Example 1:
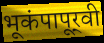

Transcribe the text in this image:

भूकंपापूर्वी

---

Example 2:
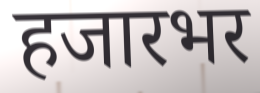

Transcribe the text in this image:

हजारभर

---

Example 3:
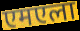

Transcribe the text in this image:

एमएला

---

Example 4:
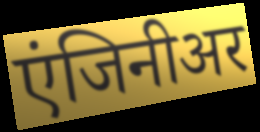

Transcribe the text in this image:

एंजिनीअर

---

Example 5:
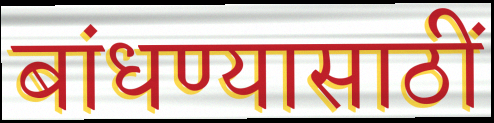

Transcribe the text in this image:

बांधण्यासाठीं